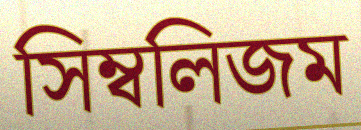
সিম্বলিজম